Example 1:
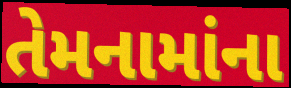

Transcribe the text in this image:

તેમનામાંના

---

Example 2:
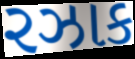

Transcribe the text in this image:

રઝાક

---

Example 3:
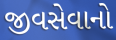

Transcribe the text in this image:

જીવસેવાનો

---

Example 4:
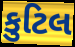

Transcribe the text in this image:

કુટિલ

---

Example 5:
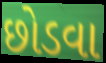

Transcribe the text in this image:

છોડવા